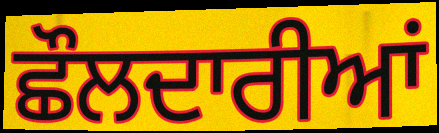
ਛੌਲਦਾਰੀਆਂ